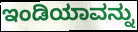
ಇಂಡಿಯಾವನ್ನು